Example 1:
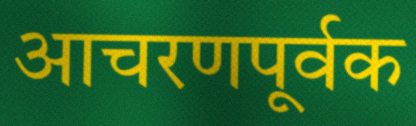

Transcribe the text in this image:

आचरणपूर्वक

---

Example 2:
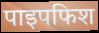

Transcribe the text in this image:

पाइपफिश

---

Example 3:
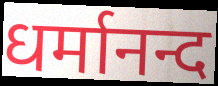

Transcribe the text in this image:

धर्मानन्द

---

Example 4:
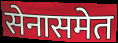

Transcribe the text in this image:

सेनासमेत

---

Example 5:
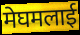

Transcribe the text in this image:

मेघमलाई